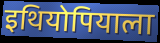
इथियोपियाला